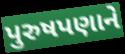
પુરુષપણાને